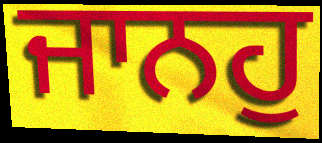
ਜਾਨਹੁ